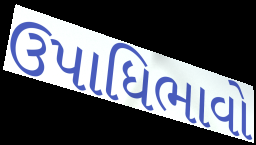
ઉપાધિભાવો